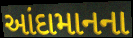
આંદામાનના